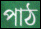
পাঠ